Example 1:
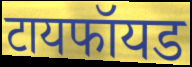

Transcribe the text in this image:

टायफॉयड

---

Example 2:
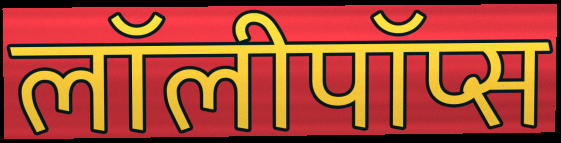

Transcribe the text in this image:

लॉलीपॉप्स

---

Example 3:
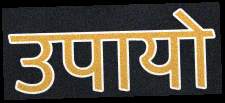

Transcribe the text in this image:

उपायो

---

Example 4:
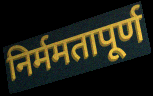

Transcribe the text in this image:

निर्ममतापूर्ण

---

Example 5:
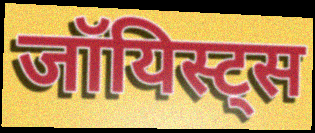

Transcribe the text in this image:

जॉयिस्ट्स